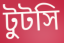
টুটসি